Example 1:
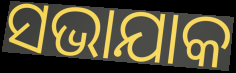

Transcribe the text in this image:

ସଭାଯାକ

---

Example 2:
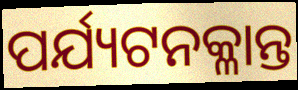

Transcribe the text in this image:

ପର୍ଯ୍ୟଟନକ୍ଳାନ୍ତ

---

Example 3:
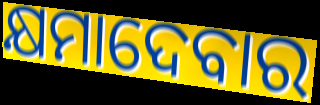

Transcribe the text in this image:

କ୍ଷମାଦେବାର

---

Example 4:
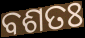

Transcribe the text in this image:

ବଶତଃ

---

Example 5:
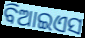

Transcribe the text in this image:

ବିଆଇଏସ